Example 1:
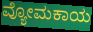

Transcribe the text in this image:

ವ್ಯೋಮಕಾಯ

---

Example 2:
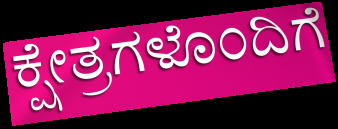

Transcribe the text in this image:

ಕ್ಷೇತ್ರಗಳೊಂದಿಗೆ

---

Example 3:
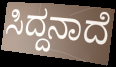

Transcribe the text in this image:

ಸಿದ್ದನಾದೆ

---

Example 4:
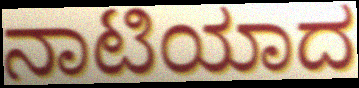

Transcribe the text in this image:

ನಾಟಿಯಾದ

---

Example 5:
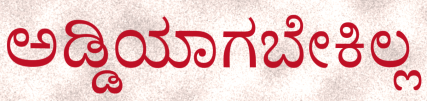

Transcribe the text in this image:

ಅಡ್ಡಿಯಾಗಬೇಕಿಲ್ಲ